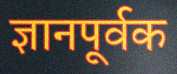
ज्ञानपूर्वक